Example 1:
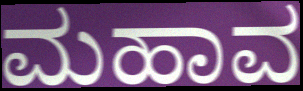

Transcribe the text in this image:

ಮಹಾವ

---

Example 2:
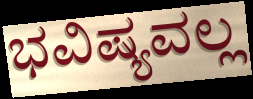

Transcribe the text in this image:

ಭವಿಷ್ಯವಲ್ಲ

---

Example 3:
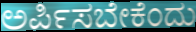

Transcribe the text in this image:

ಅರ್ಪಿಸಬೇಕೆಂದು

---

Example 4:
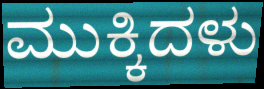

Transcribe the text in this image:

ಮುಕ್ಕಿದಳು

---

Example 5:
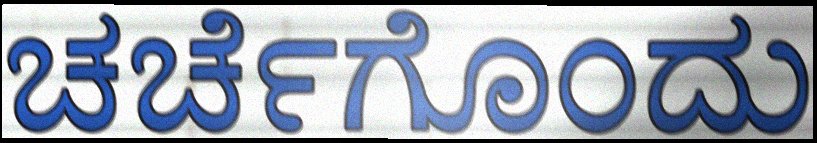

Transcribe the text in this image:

ಚರ್ಚೆಗೊಂದು